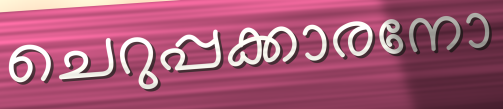
ചെറുപ്പക്കാരനോ